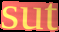
sut